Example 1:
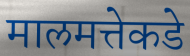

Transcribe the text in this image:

मालमत्तेकडे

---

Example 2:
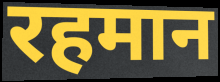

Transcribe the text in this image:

रहमान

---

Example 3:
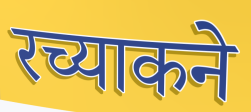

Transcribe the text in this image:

रच्याकने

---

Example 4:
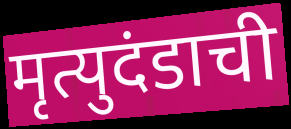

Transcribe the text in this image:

मृत्युदंडाची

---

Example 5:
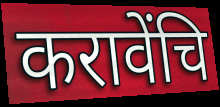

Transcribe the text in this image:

करावेंचि